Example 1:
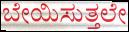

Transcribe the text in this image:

ಬೇಯಿಸುತ್ತಲೇ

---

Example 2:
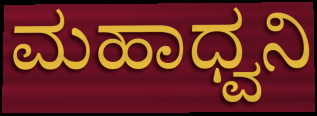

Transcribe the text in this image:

ಮಹಾಧ್ವನಿ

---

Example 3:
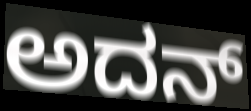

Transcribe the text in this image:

ಅದನ್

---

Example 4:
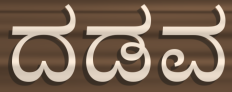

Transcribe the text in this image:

ದಡವ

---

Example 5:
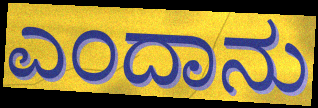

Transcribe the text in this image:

ಎಂದಾನು